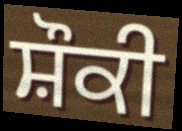
ਸ਼ੌਕੀ